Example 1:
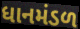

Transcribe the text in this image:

ધાનમંડળ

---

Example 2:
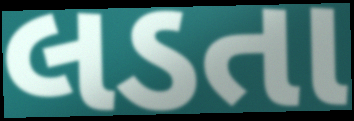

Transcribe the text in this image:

લડતા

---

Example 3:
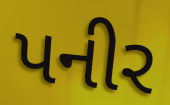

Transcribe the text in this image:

પનીર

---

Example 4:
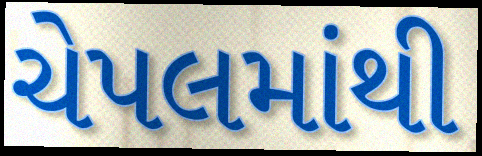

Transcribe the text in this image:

ચેપલમાંથી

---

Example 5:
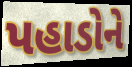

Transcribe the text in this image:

પહાડોને